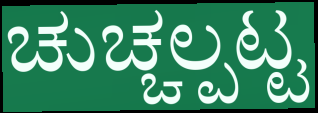
ಚುಚ್ಚಲ್ಪಟ್ಟ